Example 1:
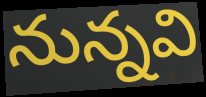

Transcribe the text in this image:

నున్నవి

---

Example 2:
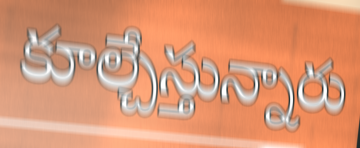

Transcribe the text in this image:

కూల్చేస్తున్నారు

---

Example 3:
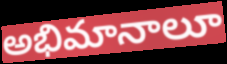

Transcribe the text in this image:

అభిమానాలూ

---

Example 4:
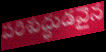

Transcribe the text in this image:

పరిశుద్ధుడవైన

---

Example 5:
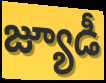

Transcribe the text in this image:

జ్యూడీ